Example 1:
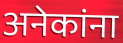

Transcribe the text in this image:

अनेकांना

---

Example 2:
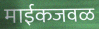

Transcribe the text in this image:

माईकजवळ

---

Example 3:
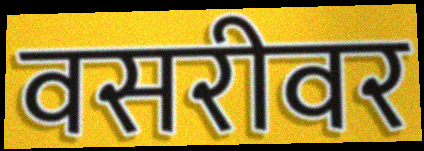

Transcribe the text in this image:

वसरीवर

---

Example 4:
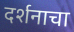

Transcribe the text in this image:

दर्शनाचा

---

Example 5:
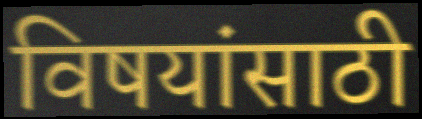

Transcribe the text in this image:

विषयांसाठी